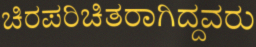
ಚಿರಪರಿಚಿತರಾಗಿದ್ದವರು